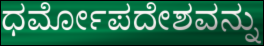
ಧರ್ಮೋಪದೇಶವನ್ನು